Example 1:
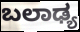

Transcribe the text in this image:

ಬಲಾಢ್ಯ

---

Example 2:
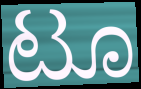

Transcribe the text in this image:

ಟೂ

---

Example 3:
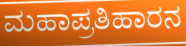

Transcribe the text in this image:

ಮಹಾಪ್ರತಿಹಾರನ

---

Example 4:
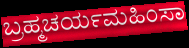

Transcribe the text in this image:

ಬ್ರಹ್ಮಚರ್ಯಮಹಿಂಸಾ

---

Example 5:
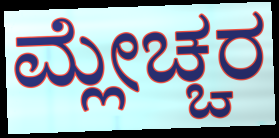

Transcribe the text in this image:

ಮ್ಲೇಚ್ಚರ